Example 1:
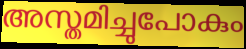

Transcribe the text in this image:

അസ്തമിച്ചുപോകും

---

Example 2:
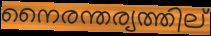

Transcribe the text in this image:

നൈരന്തര്യത്തില്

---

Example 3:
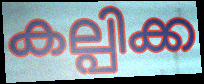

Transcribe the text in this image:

കല്പിക്ക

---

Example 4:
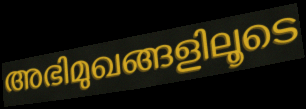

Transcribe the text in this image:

അഭിമുഖങ്ങളിലൂടെ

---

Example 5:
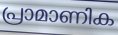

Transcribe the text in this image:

പ്രാമാണിക